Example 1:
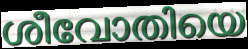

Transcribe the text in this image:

ശീവോതിയെ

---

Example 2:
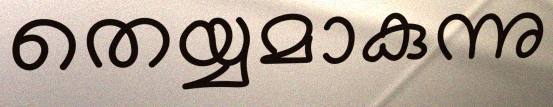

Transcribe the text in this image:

തെയ്യമാകുന്നു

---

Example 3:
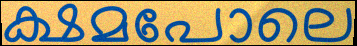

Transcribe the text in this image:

ക്ഷമപോലെ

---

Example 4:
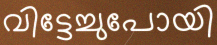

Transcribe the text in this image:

വിട്ടേച്ചുപോയി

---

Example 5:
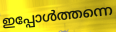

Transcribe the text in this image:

ഇപ്പോൾത്തന്നെ